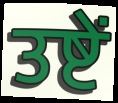
उष्टें